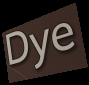
Dye